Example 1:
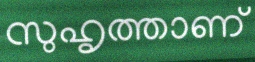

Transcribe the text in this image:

സുഹൃത്താണ്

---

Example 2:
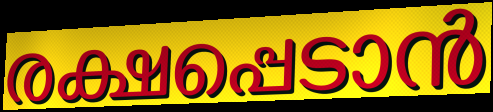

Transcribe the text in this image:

രക്ഷപ്പെടാൻ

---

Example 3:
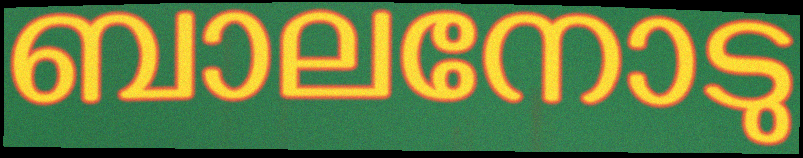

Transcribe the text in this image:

ബാലനോടു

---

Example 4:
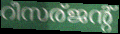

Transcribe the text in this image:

റീസര്ജന്റ്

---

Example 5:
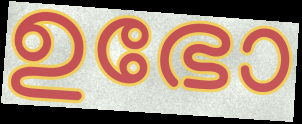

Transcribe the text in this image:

ഉഭോ